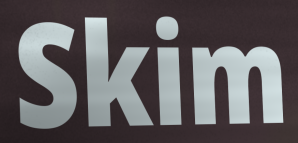
Skim